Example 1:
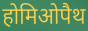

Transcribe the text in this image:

होमिओपैथ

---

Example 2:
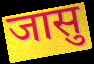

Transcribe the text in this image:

जासु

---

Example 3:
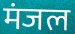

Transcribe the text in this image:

मंजल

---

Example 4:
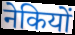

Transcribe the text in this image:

नेकियों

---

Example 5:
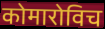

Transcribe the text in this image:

कोमारोविच